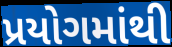
પ્રયોગમાંથી